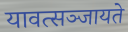
यावत्सञ्जायते